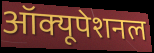
ऑक्यूपेशनल